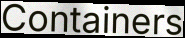
Containers